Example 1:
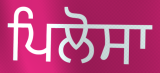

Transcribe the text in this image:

ਪਿਲੋਸਾ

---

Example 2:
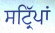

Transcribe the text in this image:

ਸਟ੍ਰਿੱਪਾਂ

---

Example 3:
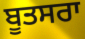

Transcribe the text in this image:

ਬੂਤਸਰਾ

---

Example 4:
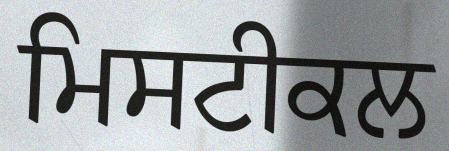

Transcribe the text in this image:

ਮਿਸਟੀਕਲ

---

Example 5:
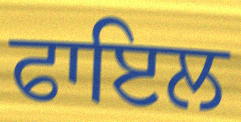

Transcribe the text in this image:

ਫਾਇਲ